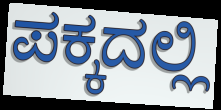
ಪಕ್ಕದಲ್ಲಿ